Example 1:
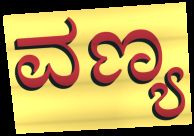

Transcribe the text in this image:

ವಣ್ಯ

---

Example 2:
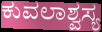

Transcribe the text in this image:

ಕುವಲಾಶ್ವಸ್ಯ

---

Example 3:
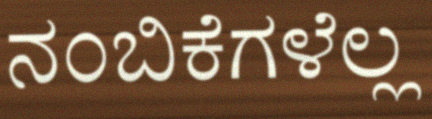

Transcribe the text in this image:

ನಂಬಿಕೆಗಳೆಲ್ಲ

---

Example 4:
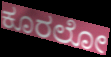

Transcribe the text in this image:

ಕೂರಲೋ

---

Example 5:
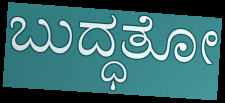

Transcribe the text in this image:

ಬುದ್ಧತೋ